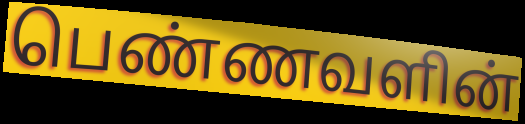
பெண்ணவளின்